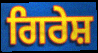
ਗਿਰੇਸ਼